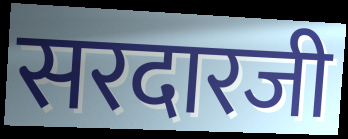
सरदारजी